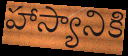
హాస్యానికి